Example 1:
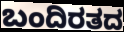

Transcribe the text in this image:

ಬಂದಿರತದ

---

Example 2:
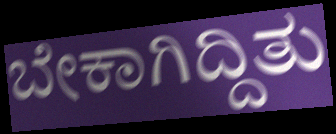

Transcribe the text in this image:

ಬೇಕಾಗಿದ್ದಿತು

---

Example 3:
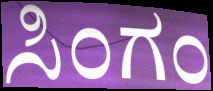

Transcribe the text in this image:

ಸಿಂಗಂ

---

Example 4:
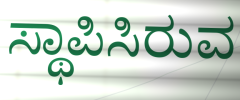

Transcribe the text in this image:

ಸ್ಥಾಪಿಸಿರುವ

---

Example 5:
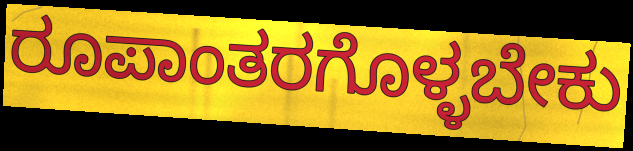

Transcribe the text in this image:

ರೂಪಾಂತರಗೊಳ್ಳಬೇಕು